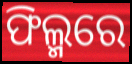
ଫିଲ୍ମରେ